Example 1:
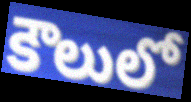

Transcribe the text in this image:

కౌలులో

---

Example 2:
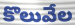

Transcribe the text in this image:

కొలువేల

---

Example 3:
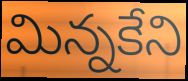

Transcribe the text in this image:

మిన్నకేని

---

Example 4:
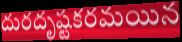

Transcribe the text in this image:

దురదృష్టకరమయిన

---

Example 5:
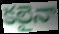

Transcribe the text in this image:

కలైనా